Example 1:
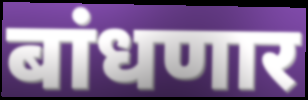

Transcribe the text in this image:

बांधणार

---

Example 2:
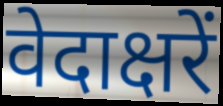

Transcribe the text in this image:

वेदाक्षरें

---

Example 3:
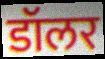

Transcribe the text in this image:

डॉलर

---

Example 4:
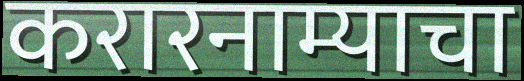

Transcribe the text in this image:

करारनाम्याचा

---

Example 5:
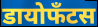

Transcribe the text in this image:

डायोफँटस